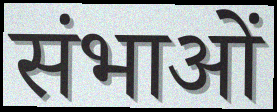
संभाओं